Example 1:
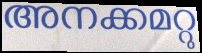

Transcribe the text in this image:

അനക്കമറ്റു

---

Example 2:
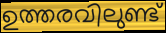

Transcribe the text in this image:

ഉത്തരവിലുണ്ട്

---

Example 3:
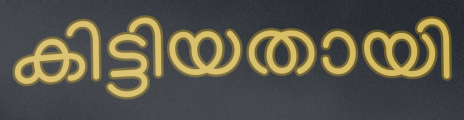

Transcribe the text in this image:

കിട്ടിയതായി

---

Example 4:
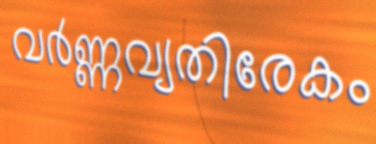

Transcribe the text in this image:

വർണ്ണവ്യതിരേകം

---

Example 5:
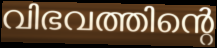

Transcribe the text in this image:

വിഭവത്തിന്റെ